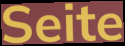
Seite